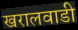
खरालवाडी